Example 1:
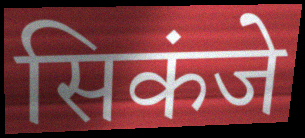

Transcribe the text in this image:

सिकंजे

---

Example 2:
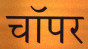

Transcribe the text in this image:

चॉपर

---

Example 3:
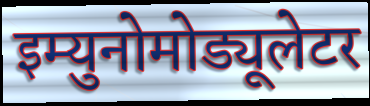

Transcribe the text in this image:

इम्युनोमोड्यूलेटर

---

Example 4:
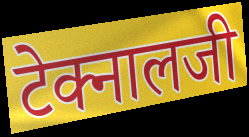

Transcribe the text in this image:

टेक्नालजी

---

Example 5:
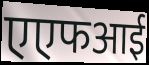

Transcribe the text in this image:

एएफआई